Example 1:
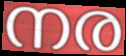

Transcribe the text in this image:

നര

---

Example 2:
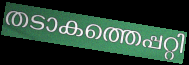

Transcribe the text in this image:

തടാകത്തെപ്പറ്റി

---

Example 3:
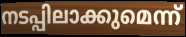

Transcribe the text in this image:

നടപ്പിലാക്കുമെന്ന്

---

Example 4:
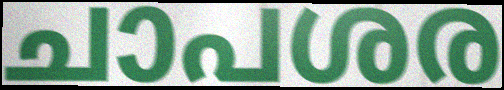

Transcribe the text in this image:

ചാപശര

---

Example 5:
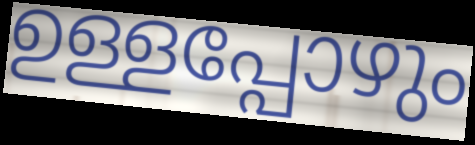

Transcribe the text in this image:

ഉള്ളപ്പോഴും